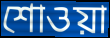
শোওয়া